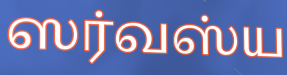
ஸர்வஸ்ய